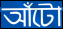
আঁটো